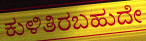
ಕುಳಿತಿರಬಹುದೇ